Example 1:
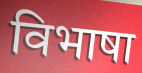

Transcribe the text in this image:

विभाषा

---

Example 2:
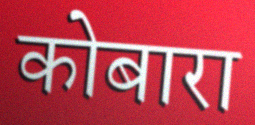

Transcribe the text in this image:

कोबारा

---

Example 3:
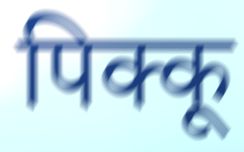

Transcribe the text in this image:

पिक्कू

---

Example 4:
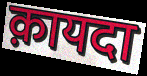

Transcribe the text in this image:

क़ायदा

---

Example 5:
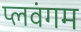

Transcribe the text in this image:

प्लवंगम